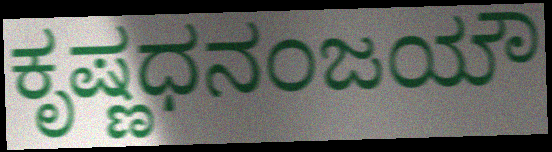
ಕೃಷ್ಣಧನಂಜಯೌ